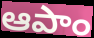
ఆపాం